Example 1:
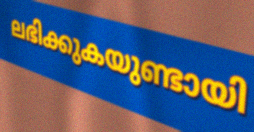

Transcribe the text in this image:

ലഭിക്കുകയുണ്ടായി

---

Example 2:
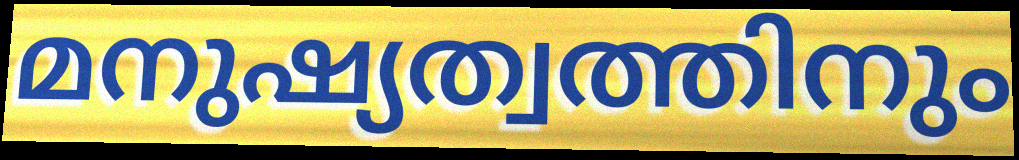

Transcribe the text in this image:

മനുഷ്യത്വത്തിനും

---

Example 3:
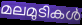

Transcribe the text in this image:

മലമുടികൾ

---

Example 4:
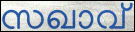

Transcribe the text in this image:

സഖാവ്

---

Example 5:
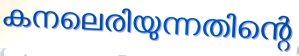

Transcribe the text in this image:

കനലെരിയുന്നതിന്റെ